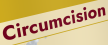
Circumcision